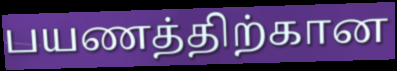
பயணத்திற்கான